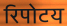
रिपोटय